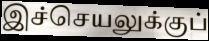
இச்செயலுக்குப்